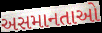
અસમાનતાઓ